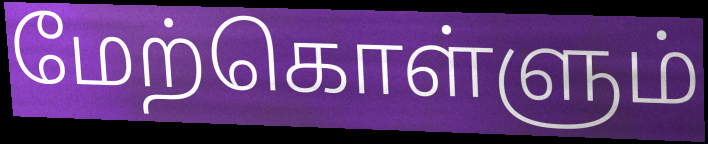
மேற்கொள்ளும்